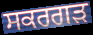
ਸਕਰਗੜ